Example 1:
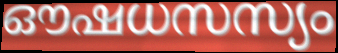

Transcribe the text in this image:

ഔഷധസസ്യം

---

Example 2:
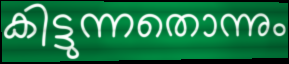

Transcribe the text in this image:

കിട്ടുന്നതൊന്നും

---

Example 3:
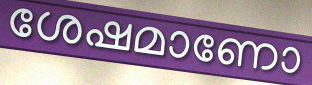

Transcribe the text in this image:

ശേഷമാണോ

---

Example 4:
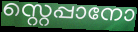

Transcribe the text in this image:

സ്റ്റെപ്പാനോ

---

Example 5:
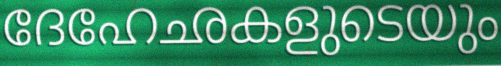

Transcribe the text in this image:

ദേഹേഛകളുടെയും